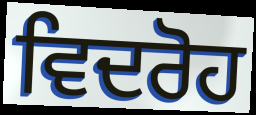
ਵਿਦਰੋਹ